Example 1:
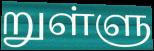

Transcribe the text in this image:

றுள்ளு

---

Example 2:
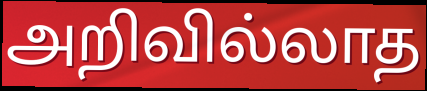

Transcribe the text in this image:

அறிவில்லாத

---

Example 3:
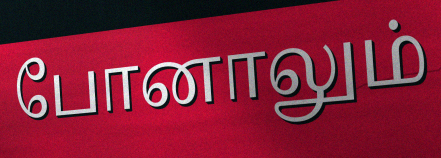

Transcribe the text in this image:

போனாலும்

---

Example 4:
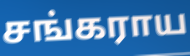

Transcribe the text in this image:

சங்கராய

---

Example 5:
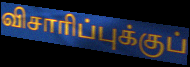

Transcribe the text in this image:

விசாரிப்புக்குப்